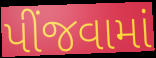
પીંજવામાં